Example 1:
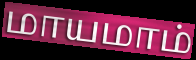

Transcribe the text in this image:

மாயமாம்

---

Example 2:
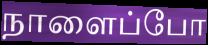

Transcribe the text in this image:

நாளைப்போ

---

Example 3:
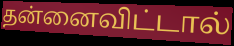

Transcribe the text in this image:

தன்னைவிட்டால்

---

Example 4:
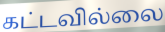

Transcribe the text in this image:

கட்டவில்லை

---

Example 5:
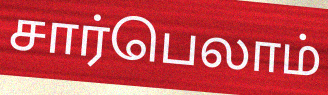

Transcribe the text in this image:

சார்பெலாம்